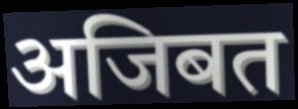
अजिबत